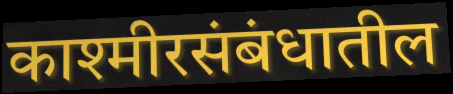
काश्मीरसंबंधातील